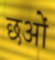
छओं